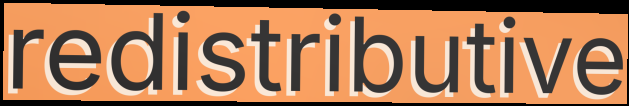
redistributive